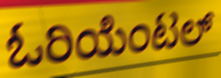
ಓರಿಯೆಂಟಲ್